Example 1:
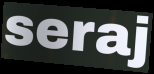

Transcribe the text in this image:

seraj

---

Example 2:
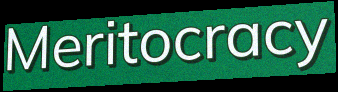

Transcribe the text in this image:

Meritocracy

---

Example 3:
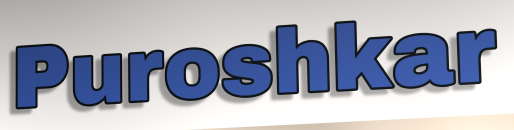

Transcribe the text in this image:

Puroshkar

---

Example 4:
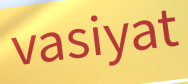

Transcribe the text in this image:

vasiyat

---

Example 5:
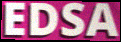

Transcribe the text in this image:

EDSA